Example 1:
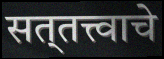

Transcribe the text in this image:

सत्‌तत्त्वाचे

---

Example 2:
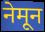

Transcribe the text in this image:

नेमून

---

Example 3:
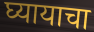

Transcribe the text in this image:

घ्यायाचा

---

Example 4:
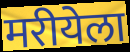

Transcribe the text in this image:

मरीयेला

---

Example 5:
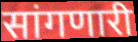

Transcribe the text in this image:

सांगणारी